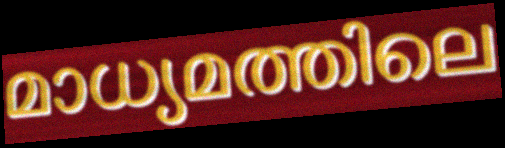
മാധ്യമത്തിലെ